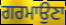
ਗਰਮਾਉਣਾ